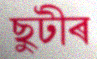
ছুটীৰ